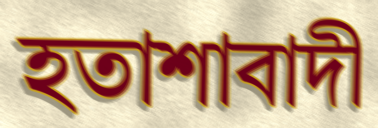
হতাশাবাদী